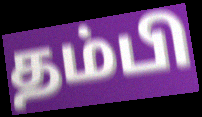
தம்பி